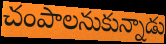
చంపాలనుకున్నాడు